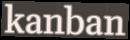
kanban